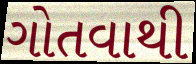
ગોતવાથી